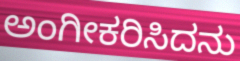
ಅಂಗೀಕರಿಸಿದನು